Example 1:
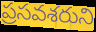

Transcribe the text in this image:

ప్రసవశరుని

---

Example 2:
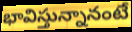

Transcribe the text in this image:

భావిస్తున్నానంటే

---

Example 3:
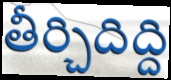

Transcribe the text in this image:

తీర్చిదిద్ది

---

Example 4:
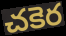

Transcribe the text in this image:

చకెర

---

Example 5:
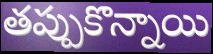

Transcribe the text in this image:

తప్పుకొన్నాయి